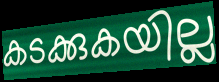
കടക്കുകയില്ല